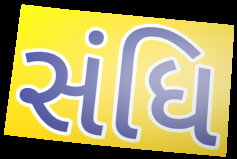
સંધિ